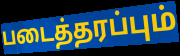
படைத்தரப்பும்